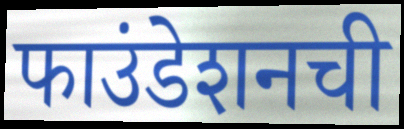
फाउंडेशनची